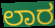
ಲಾರ